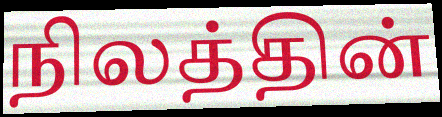
நிலத்தின்